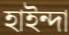
হাইন্দা